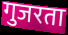
गुजरता